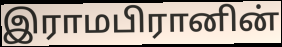
இராமபிரானின்